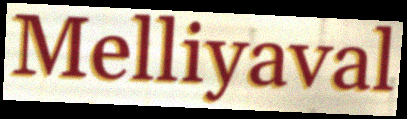
Melliyaval